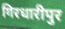
गिरधारीपुर